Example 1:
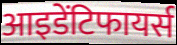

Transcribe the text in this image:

आइडेंटिफायर्स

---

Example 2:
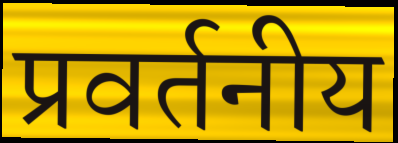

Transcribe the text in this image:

प्रवर्तनीय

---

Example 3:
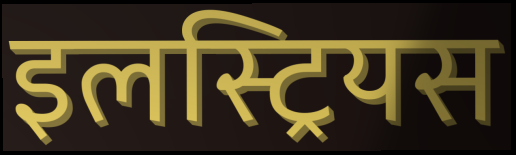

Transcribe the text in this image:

इलस्ट्रियस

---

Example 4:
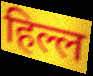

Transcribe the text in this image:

हिल्ल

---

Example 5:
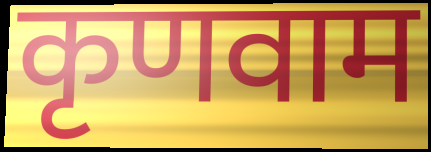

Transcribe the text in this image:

कृणवाम